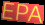
EPA